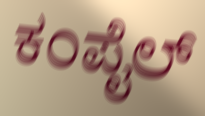
ಕಂಪೈಲ್